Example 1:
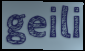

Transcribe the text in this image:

geili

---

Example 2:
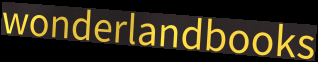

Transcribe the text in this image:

wonderlandbooks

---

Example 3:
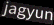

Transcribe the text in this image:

jagyun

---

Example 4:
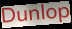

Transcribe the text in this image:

Dunlop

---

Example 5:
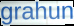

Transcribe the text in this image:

grahun